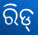
ରିଡ୍